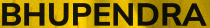
BHUPENDRA